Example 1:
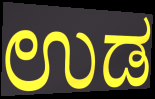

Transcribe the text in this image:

ಉಡ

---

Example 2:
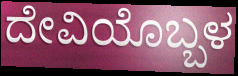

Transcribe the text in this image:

ದೇವಿಯೊಬ್ಬಳ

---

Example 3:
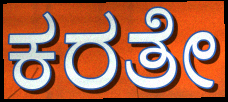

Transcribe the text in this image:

ಕರತೇ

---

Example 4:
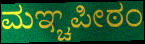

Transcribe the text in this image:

ಮಞ್ಚಪೀಠಂ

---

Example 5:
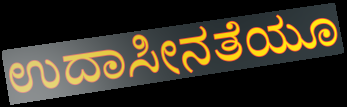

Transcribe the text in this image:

ಉದಾಸೀನತೆಯೂ